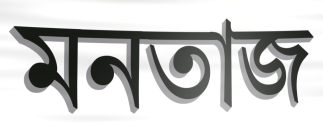
মনতাজ